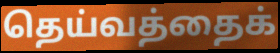
தெய்வத்தைக்